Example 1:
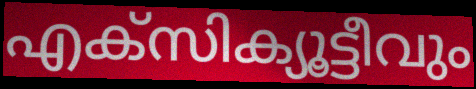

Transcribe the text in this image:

എക്സിക്യൂട്ടീവും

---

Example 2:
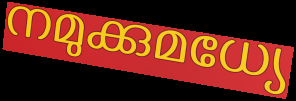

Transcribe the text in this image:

നമുക്കുമധ്യേ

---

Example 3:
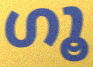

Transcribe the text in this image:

ഗൂ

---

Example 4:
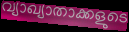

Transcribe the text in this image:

വ്യാഖ്യാതാക്കളുടെ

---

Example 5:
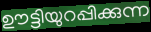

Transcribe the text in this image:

ഊട്ടിയുറപ്പിക്കുന്ന